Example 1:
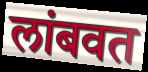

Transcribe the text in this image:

लांबवत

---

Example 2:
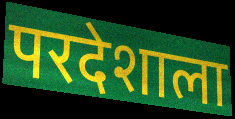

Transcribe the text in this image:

परदेशाला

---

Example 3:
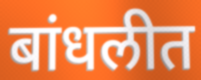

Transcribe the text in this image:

बांधलीत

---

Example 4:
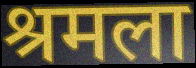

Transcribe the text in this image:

श्रमला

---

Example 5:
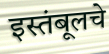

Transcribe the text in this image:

इस्तंबूलचे